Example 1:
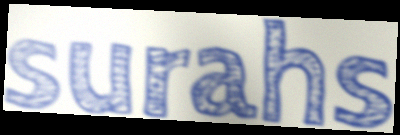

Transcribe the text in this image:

surahs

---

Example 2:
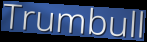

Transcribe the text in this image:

Trumbull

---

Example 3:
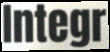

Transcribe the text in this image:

Integr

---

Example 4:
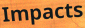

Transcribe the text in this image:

Impacts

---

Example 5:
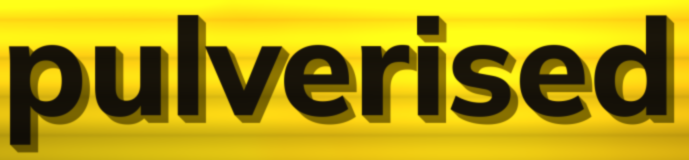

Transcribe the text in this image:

pulverised